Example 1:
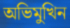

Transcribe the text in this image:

অভিমুখিন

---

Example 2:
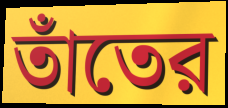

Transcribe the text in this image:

তাঁতের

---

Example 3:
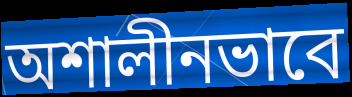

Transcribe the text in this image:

অশালীনভাবে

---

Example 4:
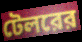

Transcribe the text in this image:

টেলরের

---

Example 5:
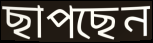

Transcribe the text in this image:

ছাপছেন